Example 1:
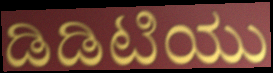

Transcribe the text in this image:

ಡಿಡಿಟಿಯು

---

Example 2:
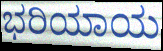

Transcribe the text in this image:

ಭರಿಯಾಯ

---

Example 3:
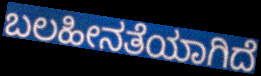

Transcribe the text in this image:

ಬಲಹೀನತೆಯಾಗಿದೆ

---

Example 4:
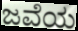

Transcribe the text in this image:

ಜವೆಯ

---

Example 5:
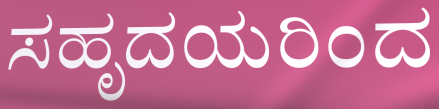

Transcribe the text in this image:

ಸಹೃದಯರಿಂದ